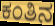
ಕಂತಿನ